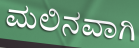
ಮಲಿನವಾಗಿ